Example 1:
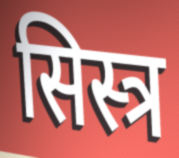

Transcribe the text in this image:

सिस्त्र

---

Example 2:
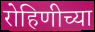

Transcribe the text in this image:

रोहिणीच्या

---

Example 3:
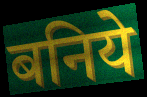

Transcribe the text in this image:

बनिये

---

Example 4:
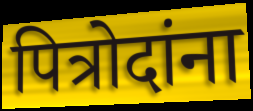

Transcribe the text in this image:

पित्रोदांना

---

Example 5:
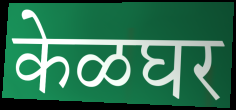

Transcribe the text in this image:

केळघर